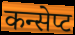
कन्सेप्ट